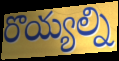
రొయ్యల్ని